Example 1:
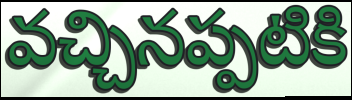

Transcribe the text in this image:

వచ్చినప్పటికి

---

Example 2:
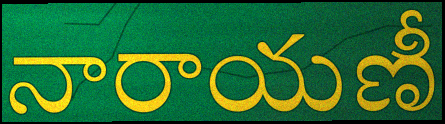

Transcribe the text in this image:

నారాయణీ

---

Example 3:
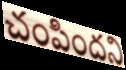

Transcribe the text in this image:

చంపిందని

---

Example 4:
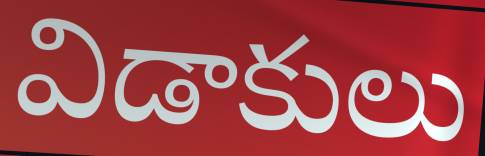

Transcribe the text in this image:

విడాకులు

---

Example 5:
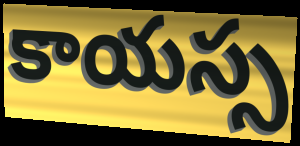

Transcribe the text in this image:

కాయస్స